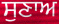
ਸੁਣਾਅ